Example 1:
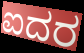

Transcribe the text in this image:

ಐದರ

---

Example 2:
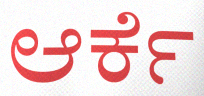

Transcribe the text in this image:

ಆರ್ಕೆ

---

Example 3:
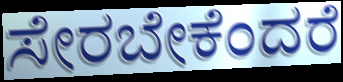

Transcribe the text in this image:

ಸೇರಬೇಕೆಂದರೆ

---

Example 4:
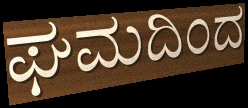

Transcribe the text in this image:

ಘಮದಿಂದ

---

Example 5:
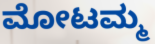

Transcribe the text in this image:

ಮೋಟಮ್ಮ